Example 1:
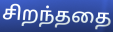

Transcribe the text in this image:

சிறந்ததை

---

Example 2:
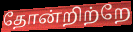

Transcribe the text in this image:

தோன்றிற்றே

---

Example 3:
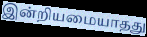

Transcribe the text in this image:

இன்றியமையாதது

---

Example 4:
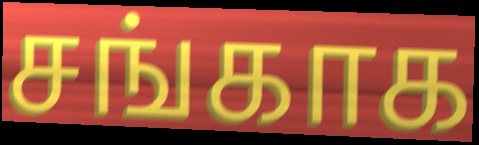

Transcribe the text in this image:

சங்காக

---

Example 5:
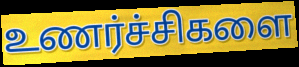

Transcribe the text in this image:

உணர்ச்சிகளை